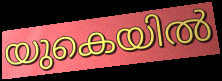
യുകെയിൽ